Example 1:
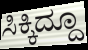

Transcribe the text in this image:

ಸಿಕ್ಕಿದ್ದೂ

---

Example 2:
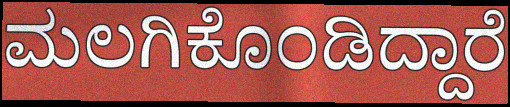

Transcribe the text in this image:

ಮಲಗಿಕೊಂಡಿದ್ದಾರೆ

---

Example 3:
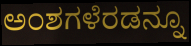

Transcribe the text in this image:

ಅಂಶಗಳೆರಡನ್ನೂ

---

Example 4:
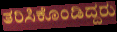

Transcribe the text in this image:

ತರಿಸಿಕೊಂಡಿದ್ದರು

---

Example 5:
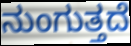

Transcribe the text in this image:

ನುಂಗುತ್ತದೆ